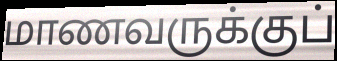
மாணவருக்குப்